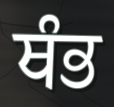
ਥੰਭ